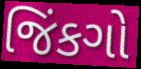
જિંકગો